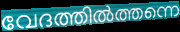
വേദത്തിൽത്തന്നെ